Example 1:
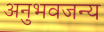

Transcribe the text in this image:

अनुभवजन्य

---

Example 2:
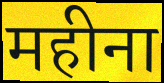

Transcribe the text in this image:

महीना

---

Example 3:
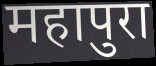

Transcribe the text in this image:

महापुरा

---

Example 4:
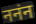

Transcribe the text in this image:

ननंन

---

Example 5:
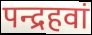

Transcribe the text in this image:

पन्द्रहवां